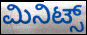
ಮಿನಿಟ್ಸ್